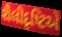
શૈલીદૃષ્ટિએ